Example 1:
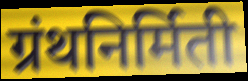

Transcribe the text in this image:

ग्रंथनिर्मिती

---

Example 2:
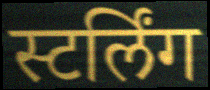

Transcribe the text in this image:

स्टर्लिंग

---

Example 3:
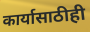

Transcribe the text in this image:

कार्यासाठीही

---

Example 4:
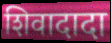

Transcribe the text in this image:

शिवादादा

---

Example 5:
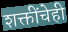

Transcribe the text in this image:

शक्तींचेही